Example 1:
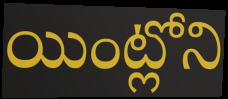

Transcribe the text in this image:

యింట్లోని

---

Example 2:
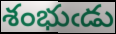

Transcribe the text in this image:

శంభుఁడు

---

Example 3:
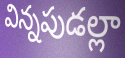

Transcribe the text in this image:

విన్నపుడల్లా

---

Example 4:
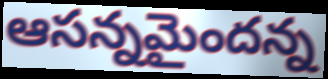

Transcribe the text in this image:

ఆసన్నమైందన్న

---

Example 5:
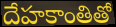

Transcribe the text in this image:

దేహకాంతితో